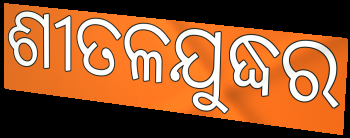
ଶୀତଳଯୁଦ୍ଧର